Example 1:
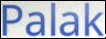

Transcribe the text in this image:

Palak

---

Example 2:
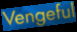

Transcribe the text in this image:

Vengeful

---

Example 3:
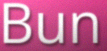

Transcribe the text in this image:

Bun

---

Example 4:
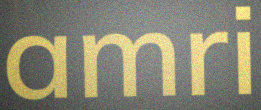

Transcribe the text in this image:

amri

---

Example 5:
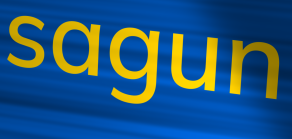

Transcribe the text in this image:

sagun